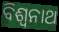
ବିଶ୍ୱନାଥ